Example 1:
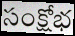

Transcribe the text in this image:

సంక్షోభ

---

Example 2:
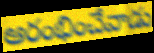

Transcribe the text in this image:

ఆరంభించేవాడు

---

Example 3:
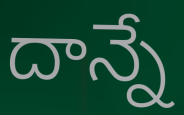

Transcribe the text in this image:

దాన్నే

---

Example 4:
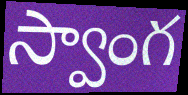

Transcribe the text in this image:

స్వాంగ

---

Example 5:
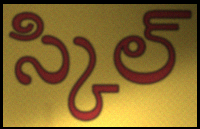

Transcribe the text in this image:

స్కిల్